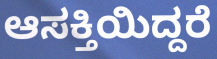
ಆಸಕ್ತಿಯಿದ್ದರೆ